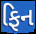
ફિન